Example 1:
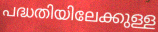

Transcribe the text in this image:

പദ്ധതിയിലേക്കുള്ള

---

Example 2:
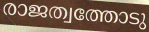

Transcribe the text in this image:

രാജത്വത്തോടു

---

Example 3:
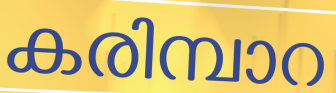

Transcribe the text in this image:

കരിമ്പാറ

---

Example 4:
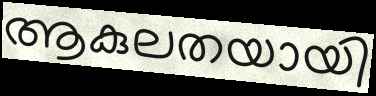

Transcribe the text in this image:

ആകുലതയായി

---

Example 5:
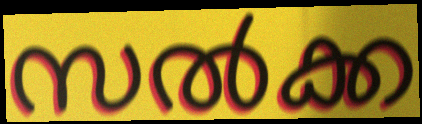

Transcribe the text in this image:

സൽക്ക